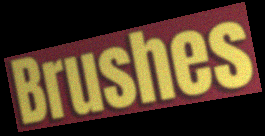
Brushes